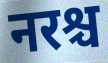
नरश्च